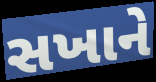
સખાને